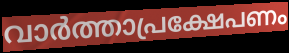
വാർത്താപ്രക്ഷേപണം